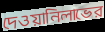
দেওয়ানিলাভের